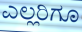
ಎಲ್ಲರಿಗೂ